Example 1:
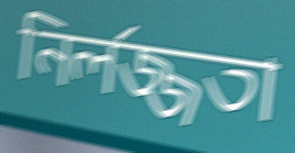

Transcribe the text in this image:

নির্লজ্জতা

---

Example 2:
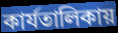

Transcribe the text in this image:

কার্যতালিকায়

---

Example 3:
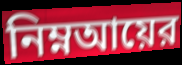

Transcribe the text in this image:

নিম্নআয়ের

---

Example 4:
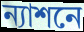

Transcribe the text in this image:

ন্যাশনে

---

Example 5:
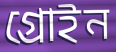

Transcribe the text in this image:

গ্রোইন